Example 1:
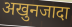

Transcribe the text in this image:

अखुनजादा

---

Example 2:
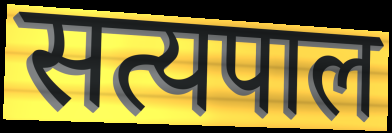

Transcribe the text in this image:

सत्यपाल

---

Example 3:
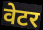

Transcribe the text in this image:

वेटर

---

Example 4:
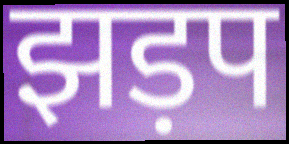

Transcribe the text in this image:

झड़प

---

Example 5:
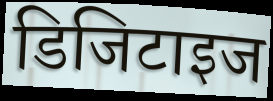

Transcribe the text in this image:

डिजिटाइज